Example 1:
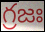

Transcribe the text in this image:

గ్రజః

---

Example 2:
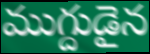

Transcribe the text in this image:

ముగ్దుడైన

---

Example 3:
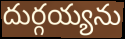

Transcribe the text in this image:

దుర్గయ్యను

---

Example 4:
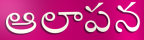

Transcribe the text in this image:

ఆలాపన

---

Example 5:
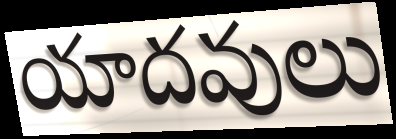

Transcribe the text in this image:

యాదవులు